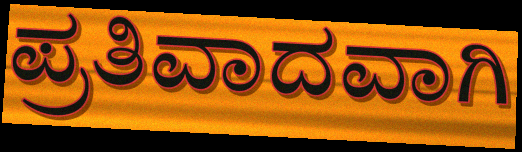
ಪ್ರತಿವಾದವಾಗಿ